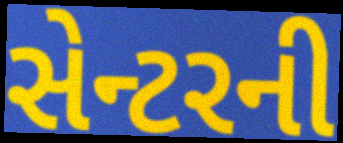
સેન્ટરની